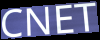
CNET